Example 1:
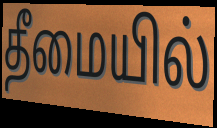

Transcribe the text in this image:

தீமையில்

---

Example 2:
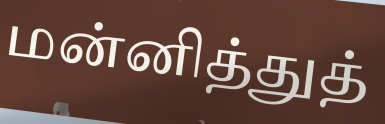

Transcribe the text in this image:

மன்னித்துத்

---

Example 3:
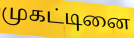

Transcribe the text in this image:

முகட்டினை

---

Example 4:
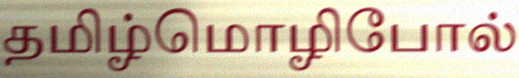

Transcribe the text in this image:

தமிழ்மொழிபோல்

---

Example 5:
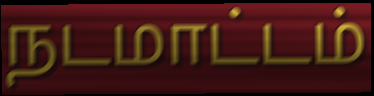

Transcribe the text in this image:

நடமாட்டம்